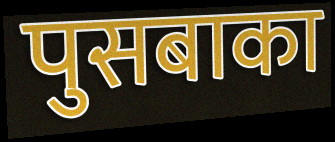
पुसबाका